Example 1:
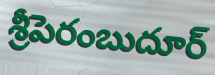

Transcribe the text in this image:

శ్రీపెరంబుదూర్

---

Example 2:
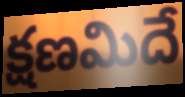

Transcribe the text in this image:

క్షణమిదే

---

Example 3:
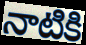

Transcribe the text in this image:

నాటికి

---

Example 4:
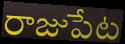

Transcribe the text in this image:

రాజుపేట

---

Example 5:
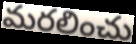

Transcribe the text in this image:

మరలించు